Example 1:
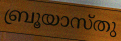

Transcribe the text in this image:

ബ്രൂയാസ്തു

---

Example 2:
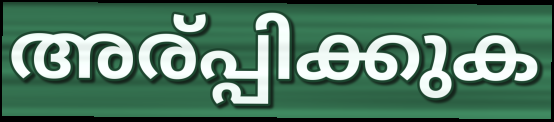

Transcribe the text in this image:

അര്പ്പിക്കുക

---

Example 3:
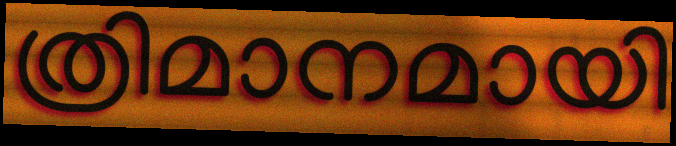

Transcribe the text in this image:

ത്രിമാനമായി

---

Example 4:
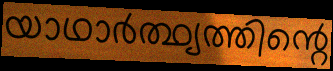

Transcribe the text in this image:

യാഥാർത്ഥ്യത്തിന്റെ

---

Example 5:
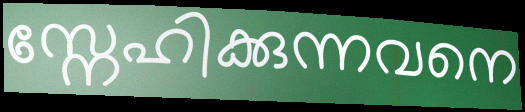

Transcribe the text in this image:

സ്നേഹിക്കുന്നവനെ